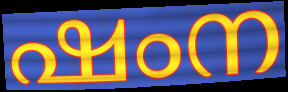
ഷംന